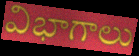
విభాగాలు